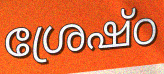
ശ്രേഷ്ഠ